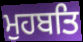
ਮੁਹਬਤਿ